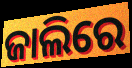
ଜାଲିରେ